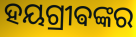
ହୟଗ୍ରୀଵଙ୍କର